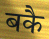
बकै